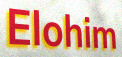
Elohim